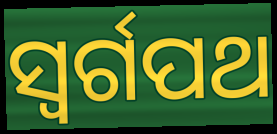
ସ୍ୱର୍ଗପଥ